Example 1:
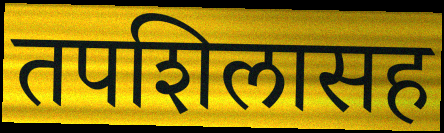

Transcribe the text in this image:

तपशिलासह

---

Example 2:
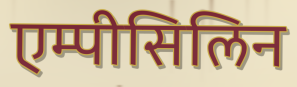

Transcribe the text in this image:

एम्पीसिलिन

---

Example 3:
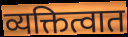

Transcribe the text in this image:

व्यक्तित्वात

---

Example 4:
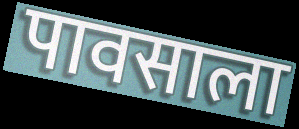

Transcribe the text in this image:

पावसाला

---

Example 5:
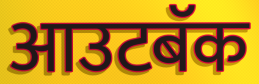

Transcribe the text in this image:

आउटबॅक